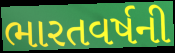
ભારતવર્ષની